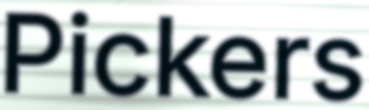
Pickers